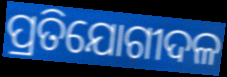
ପ୍ରତିଯୋଗୀଦଳ